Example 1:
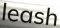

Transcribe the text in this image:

leash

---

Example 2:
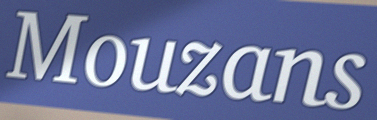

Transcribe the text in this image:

Mouzans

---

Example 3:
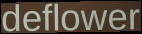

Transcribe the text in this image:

deflower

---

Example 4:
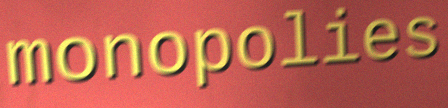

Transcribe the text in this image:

monopolies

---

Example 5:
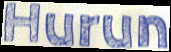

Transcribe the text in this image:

Hurun